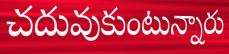
చదువుకుంటున్నారు